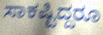
ಸಾಕಷ್ಟಿದ್ದರೂ